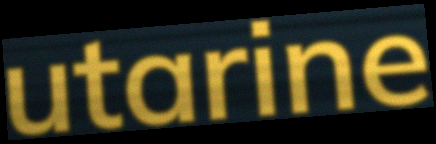
utarine